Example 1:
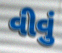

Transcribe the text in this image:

વીવું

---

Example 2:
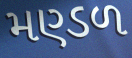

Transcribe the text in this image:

મણ્ડળ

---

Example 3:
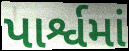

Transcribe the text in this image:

પાર્શ્વમાં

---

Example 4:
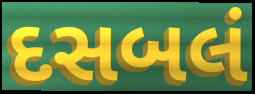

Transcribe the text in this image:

દસબલં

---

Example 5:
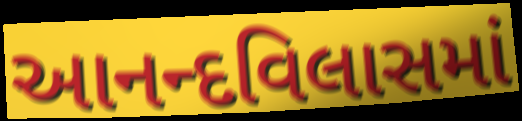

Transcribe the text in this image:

આનન્દવિલાસમાં